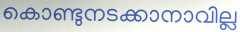
കൊണ്ടുനടക്കാനാവില്ല